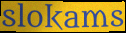
slokams